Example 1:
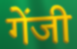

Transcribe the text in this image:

गेंजी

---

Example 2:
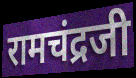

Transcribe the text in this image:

रामचंद्रजी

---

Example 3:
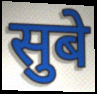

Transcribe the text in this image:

सुबे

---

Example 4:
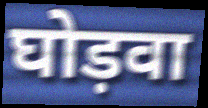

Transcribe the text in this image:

घोड़वा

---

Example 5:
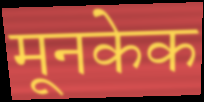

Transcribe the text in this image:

मूनकेक